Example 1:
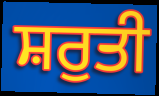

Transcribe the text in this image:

ਸ਼ਰੁਤੀ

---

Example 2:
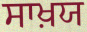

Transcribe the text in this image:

ਸਾਖ਼ਯ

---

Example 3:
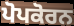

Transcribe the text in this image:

ਪੋਪਕੋਰਨ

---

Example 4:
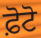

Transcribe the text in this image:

ਫ਼ੋਟੋ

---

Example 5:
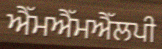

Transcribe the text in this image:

ਐੱਮਐੱਮਐੱਲਪੀ